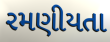
રમણીયતા